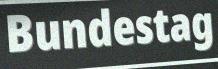
Bundestag